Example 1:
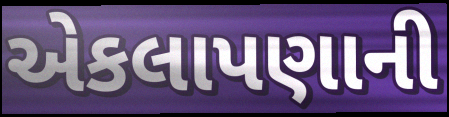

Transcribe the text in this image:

એકલાપણાની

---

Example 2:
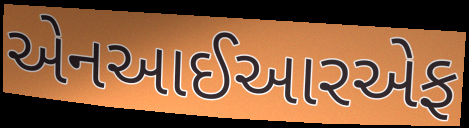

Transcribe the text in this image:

એનઆઈઆરએફ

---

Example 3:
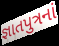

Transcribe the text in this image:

જ્ઞાતપુત્રનાં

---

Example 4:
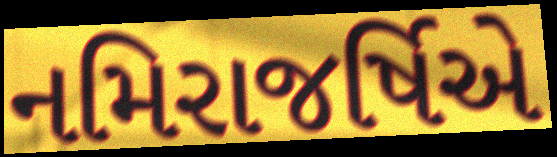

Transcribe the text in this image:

નમિરાજર્ષિએ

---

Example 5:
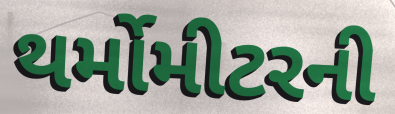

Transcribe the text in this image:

થર્મોમીટરની